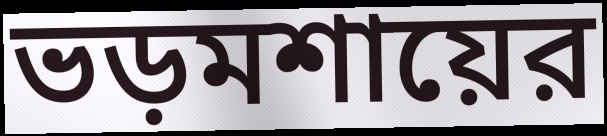
ভড়মশায়ের